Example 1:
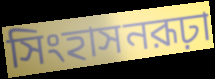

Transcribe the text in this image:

সিংহাসনরূঢ়া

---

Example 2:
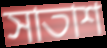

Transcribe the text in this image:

সাতাশ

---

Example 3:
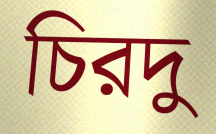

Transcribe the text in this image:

চিরদু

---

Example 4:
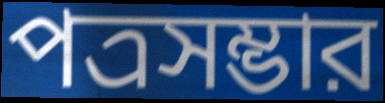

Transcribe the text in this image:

পত্রসম্ভার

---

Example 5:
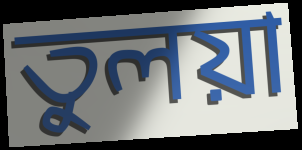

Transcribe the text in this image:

তুলয়া